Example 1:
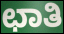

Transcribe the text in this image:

ಛಾತಿ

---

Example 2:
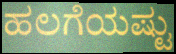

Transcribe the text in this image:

ಹಲಗೆಯಷ್ಟು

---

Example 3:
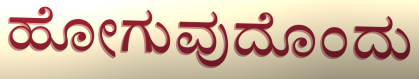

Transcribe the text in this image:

ಹೋಗುವುದೊಂದು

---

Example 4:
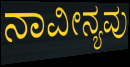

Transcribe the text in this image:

ನಾವೀನ್ಯವು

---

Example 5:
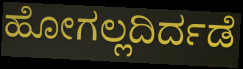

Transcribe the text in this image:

ಹೋಗಲ್ಲದಿರ್ದಡೆ